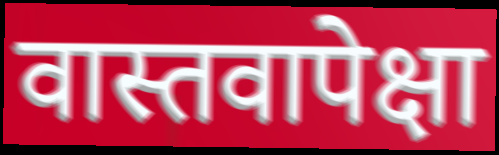
वास्तवापेक्षा